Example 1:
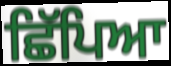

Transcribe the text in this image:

ਛਿੱਪਿਆ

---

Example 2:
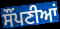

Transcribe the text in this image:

ਸੌਂਪਣੀਆਂ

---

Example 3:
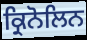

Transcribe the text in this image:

ਕ੍ਰਿਨੋਲਿਨ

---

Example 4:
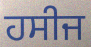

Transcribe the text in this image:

ਹਸੀਜ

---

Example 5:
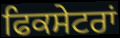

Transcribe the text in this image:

ਫਿਕਸੇਟਰਾਂ